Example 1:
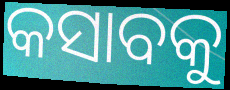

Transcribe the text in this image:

କସାବକୁ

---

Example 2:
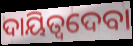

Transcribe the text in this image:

ଦାୟିତ୍ୱଦେବା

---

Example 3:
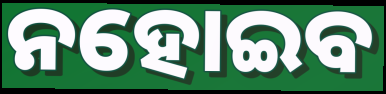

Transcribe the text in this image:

ନହୋଇବ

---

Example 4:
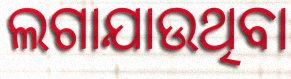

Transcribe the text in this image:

ଲଗାଯାଉଥିବା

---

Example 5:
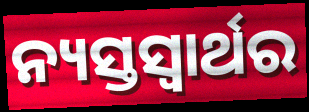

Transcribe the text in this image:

ନ୍ୟସ୍ତସ୍ୱାର୍ଥର